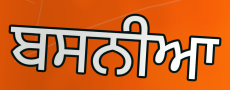
ਬਸਨੀਆ